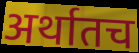
अर्थातच